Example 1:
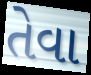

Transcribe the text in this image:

તેવા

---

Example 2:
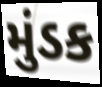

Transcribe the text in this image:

મુંડક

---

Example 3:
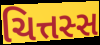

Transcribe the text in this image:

ચિત્તસ્સ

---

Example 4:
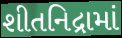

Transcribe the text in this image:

શીતનિદ્રામાં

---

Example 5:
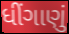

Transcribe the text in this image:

ધીંગાણું